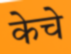
केचे